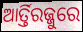
ଆର୍ତ୍ତିରଜ୍ଜୁରେ